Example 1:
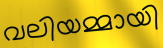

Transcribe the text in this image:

വലിയമ്മായി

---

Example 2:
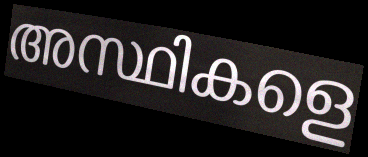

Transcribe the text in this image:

അസ്ഥികളെ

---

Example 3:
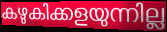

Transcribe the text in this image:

കഴുകിക്കളയുന്നില്ല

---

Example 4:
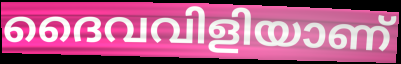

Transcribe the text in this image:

ദൈവവിളിയാണ്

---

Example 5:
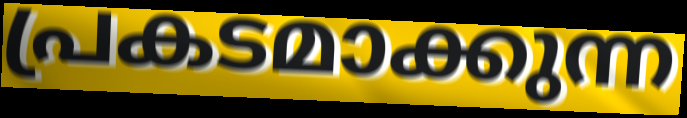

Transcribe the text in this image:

പ്രകടമാക്കുന്ന